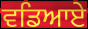
ਵਡਿਆਏ